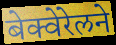
बेक्वेरेलने